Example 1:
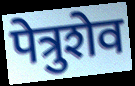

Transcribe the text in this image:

पेत्रुशेव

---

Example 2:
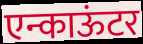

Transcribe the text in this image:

एन्काऊंटर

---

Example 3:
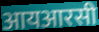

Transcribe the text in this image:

आयआरसी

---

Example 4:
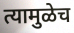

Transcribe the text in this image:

त्यामुळेच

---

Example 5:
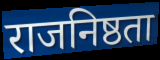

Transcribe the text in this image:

राजनिष्ठता